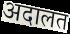
अदालत